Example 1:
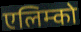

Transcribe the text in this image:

एलिम्को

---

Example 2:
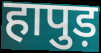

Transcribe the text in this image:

हापुड़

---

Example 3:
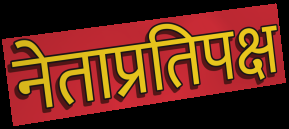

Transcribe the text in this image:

नेताप्रतिपक्ष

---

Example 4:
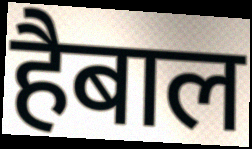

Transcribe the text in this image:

हैबाल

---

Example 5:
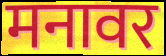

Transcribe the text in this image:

मनावर